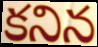
కనిన